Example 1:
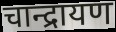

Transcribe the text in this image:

चान्द्रायण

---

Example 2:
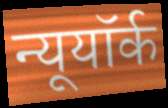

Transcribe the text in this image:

न्यूयॉर्क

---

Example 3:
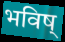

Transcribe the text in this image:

भविष्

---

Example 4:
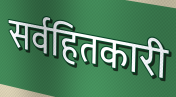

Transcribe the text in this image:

सर्वहितकारी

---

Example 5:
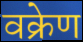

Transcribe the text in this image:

वक्रेण